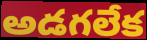
అడగలేక